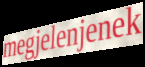
megjelenjenek